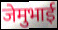
जेमुभाई